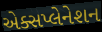
એક્સપ્લેનેશન